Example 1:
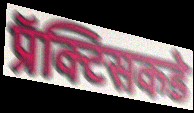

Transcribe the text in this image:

प्रॅक्टिसकडे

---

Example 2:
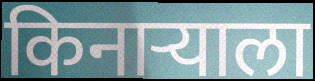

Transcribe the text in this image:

किनाऱ्याला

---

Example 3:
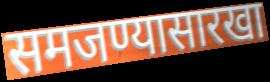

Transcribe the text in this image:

समजण्यासारखा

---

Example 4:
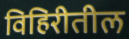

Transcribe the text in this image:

विहिरीतील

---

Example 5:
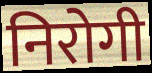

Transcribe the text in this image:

निरोगी